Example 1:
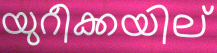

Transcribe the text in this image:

യുറീക്കയില്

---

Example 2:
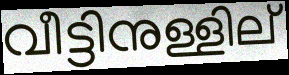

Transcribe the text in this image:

വീട്ടിനുള്ളില്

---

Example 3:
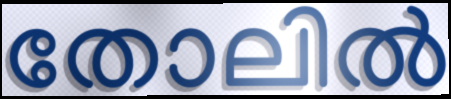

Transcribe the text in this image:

തോലിൽ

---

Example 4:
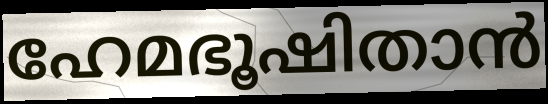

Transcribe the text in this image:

ഹേമഭൂഷിതാൻ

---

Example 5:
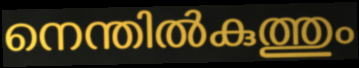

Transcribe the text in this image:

നെന്തിൽകുത്തും